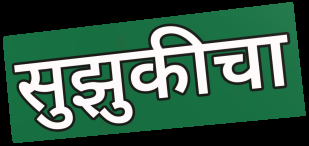
सुझुकीचा